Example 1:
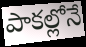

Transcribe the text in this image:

పాకల్లోనే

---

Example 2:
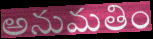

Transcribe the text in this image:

అనుమతిం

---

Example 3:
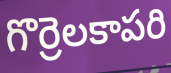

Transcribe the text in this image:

గొర్రెలకాపరి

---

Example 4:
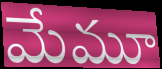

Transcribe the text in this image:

మేమూ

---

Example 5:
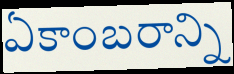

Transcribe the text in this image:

ఏకాంబరాన్ని